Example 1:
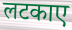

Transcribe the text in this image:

लटकाए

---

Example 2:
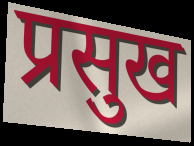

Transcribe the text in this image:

प्रसुख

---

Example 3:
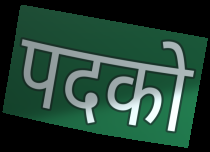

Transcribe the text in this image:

पदको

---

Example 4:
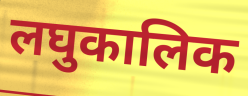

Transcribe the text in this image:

लघुकालिक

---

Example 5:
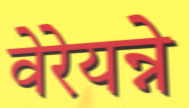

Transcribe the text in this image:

वेरेयन्ने